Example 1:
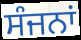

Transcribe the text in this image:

ਸੰਜਨਾਂ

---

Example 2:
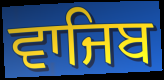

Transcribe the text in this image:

ਵਾਜਿਬ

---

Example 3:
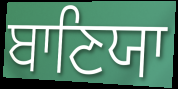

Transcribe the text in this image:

ਬਾਣਿਯਾ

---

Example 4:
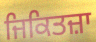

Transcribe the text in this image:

ਜਿਕਿਤਜ਼ਾ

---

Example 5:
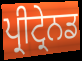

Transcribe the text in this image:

ਪ੍ਰੀਟ੍ਰੇਨਡ